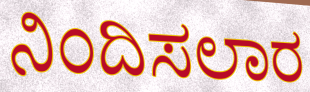
ನಿಂದಿಸಲಾರ